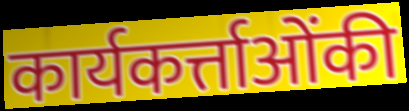
कार्यकर्त्ताओंकी